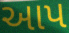
આપ